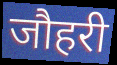
जौहरी